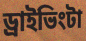
ড্রাইভিংটা